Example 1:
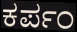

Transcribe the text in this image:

ಕರ್ಪಂ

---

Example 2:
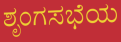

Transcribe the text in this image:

ಶೃಂಗಸಭೆಯ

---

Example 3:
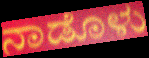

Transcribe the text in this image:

ನಾಡೊಳು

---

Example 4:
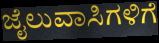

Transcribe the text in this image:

ಜೈಲುವಾಸಿಗಳಿಗೆ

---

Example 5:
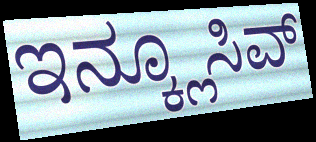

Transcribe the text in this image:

ಇನ್ಕ್ಲೂಸಿವ್